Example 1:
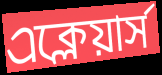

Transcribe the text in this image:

এক্লেয়ার্স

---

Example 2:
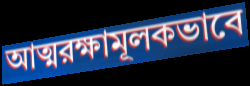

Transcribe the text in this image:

আত্মরক্ষামূলকভাবে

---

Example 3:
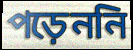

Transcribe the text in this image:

পড়েননি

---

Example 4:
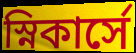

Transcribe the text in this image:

স্নিকার্সে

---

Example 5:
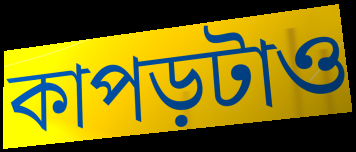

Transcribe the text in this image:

কাপড়টাও